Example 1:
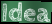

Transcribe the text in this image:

Idea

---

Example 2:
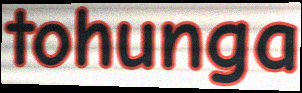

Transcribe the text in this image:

tohunga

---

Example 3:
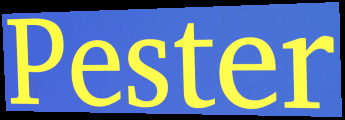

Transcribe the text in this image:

Pester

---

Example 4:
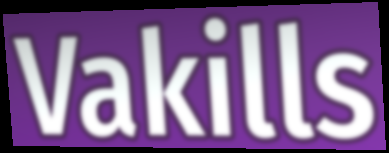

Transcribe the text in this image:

Vakills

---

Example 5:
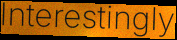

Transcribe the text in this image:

Interestingly